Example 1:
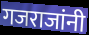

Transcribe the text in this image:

गजराजांनी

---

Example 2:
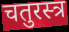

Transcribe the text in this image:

चतुरस्त्र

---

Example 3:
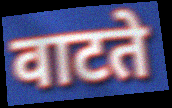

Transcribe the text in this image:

वाटते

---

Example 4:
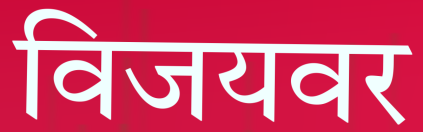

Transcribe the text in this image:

विजयवर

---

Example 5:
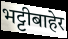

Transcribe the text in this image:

भट्टीबाहेर